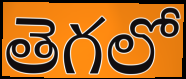
తెగలో